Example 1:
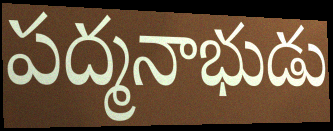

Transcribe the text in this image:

పద్మనాభుడు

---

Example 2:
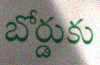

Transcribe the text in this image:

బోర్డుకు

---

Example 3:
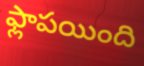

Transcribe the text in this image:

ఫ్లాపయింది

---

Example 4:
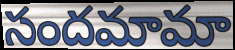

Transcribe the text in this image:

సందమామా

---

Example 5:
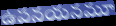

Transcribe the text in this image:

ఉపనయనమూ